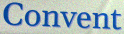
Convent